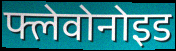
फ्लेवोनोइड